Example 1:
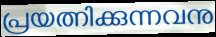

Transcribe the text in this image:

പ്രയത്നിക്കുന്നവനു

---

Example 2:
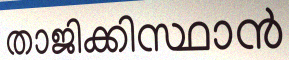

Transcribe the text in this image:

താജിക്കിസ്ഥാൻ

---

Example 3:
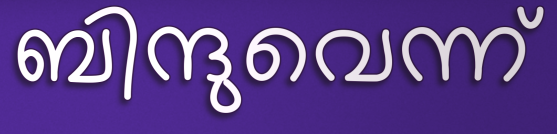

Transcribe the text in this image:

ബിന്ദുവെന്ന്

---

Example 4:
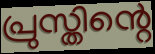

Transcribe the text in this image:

പ്രുസ്തിന്റെ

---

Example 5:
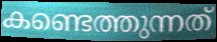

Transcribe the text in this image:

കണ്ടെത്തുന്നത്